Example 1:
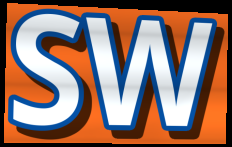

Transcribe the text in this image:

SW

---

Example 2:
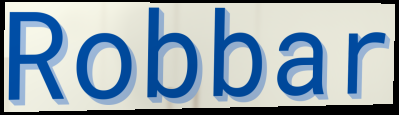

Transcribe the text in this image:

Robbar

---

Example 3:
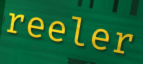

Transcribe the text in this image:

reeler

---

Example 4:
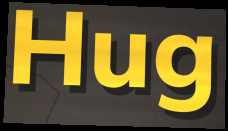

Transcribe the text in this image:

Hug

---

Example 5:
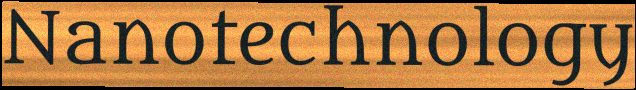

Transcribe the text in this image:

Nanotechnology